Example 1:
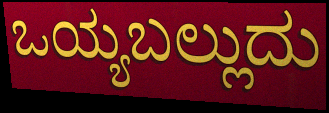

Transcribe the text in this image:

ಒಯ್ಯಬಲ್ಲುದು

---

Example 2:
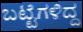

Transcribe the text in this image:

ಬಟ್ಟೆಗಳಿದ್ದ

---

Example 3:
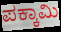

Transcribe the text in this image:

ಪಕ್ಕಾಮಿ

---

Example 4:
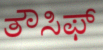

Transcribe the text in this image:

ತೌಸಿಫ್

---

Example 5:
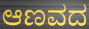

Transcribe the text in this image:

ಆಣವದ